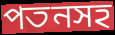
পতনসহ